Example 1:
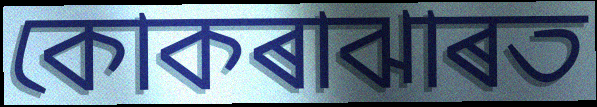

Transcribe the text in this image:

কোকৰাঝাৰত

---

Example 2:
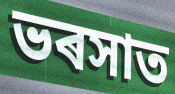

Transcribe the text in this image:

ভৰসাত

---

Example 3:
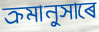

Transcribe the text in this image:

ক্ৰমানুসাৰে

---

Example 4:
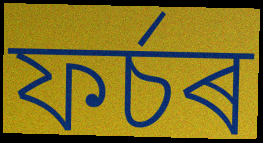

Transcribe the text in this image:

ফৰ্চৰ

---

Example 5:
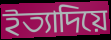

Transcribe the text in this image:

ইত্যাদিয়ে